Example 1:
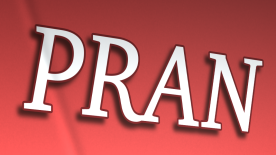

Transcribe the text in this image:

PRAN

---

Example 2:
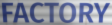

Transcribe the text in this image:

FACTORY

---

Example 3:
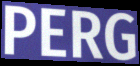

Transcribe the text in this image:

PERG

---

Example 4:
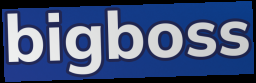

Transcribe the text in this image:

bigboss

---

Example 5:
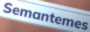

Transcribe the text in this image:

Semantemes